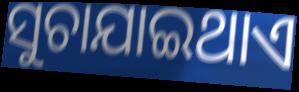
ସୁଚାଯାଇଥାଏ